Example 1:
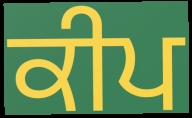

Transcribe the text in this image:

ਕੀਪ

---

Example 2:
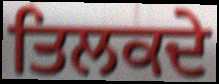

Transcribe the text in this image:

ਤਿਲਕਦੇ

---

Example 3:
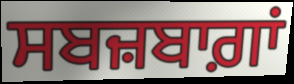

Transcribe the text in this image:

ਸਬਜ਼ਬਾਗ਼ਾਂ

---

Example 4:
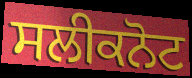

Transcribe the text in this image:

ਸਲੀਕਨੋਟ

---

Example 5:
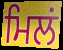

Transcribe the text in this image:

ਮਿਲਂ